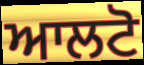
ਆਲਟੋ